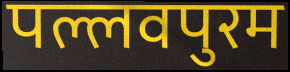
पल्लवपुरम